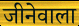
जीनेवाला